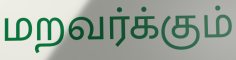
மறவர்க்கும்